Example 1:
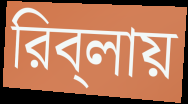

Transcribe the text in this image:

রিব্‌লায়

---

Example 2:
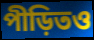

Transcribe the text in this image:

পীড়িতও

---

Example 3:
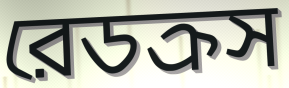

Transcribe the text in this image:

রেডক্রস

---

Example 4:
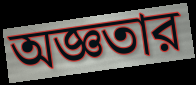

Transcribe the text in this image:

অজ্ঞতার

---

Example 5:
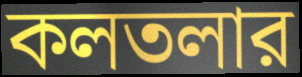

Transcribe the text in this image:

কলতলার